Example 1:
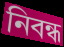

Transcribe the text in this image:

নিবন্ধ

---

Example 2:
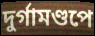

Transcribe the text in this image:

দুর্গামণ্ডপে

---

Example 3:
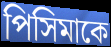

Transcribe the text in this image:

পিসিমাকে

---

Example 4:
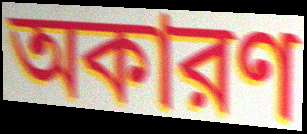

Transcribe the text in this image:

অকারণ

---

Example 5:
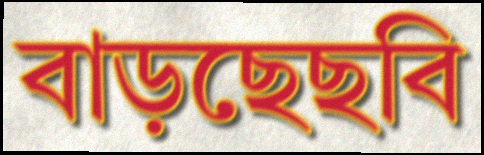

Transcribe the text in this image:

বাড়ছেছবি